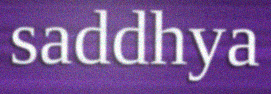
saddhya